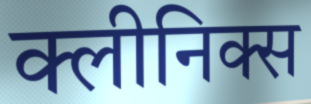
क्लीनिक्स